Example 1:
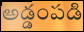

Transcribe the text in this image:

అడ్డంపడి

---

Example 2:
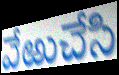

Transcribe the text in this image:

వేఱుచేసి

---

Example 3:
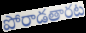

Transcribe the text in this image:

పోరాడతారట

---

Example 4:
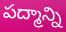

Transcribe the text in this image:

పద్మాన్ని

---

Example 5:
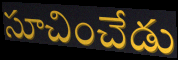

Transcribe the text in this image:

సూచించేడు